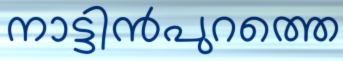
നാട്ടിൻപുറത്തെ